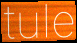
tule